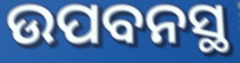
ଉପବନସ୍ଥ